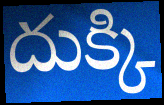
దుక్కి